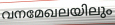
വനമേഖലയിലും